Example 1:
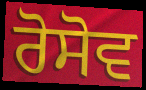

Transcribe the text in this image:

ਰੋਸੋਵ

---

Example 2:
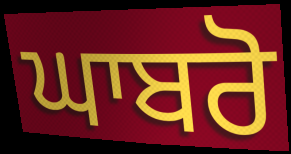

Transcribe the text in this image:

ਘਾਬਰੋ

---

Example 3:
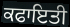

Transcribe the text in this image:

ਕਫਾਇਤੀ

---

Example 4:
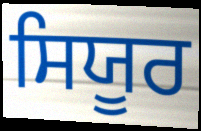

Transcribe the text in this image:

ਸਿਯੂਰ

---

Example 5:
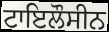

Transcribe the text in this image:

ਟਾਇਲੌਸੀਨ